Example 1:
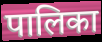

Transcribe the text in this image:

पालिका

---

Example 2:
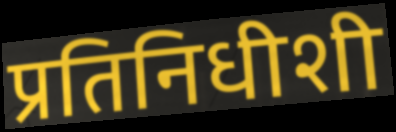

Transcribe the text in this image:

प्रतिनिधीशी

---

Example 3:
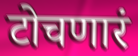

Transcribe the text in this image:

टोचणारं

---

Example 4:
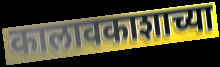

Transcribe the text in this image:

कालावकाशाच्या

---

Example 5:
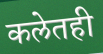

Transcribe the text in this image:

कलेतही